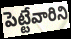
పెట్టేవారిని